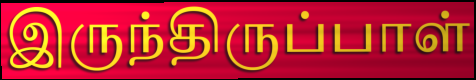
இருந்திருப்பாள்